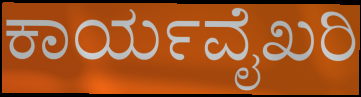
ಕಾರ್ಯವೈಖರಿ